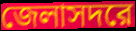
জেলাসদরে